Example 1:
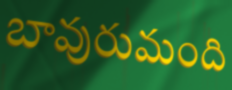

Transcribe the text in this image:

బావురుమంది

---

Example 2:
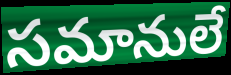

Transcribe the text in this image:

సమానులే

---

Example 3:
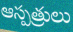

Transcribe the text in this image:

ఆస్పత్రులు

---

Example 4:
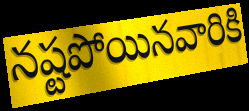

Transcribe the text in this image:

నష్టపోయినవారికి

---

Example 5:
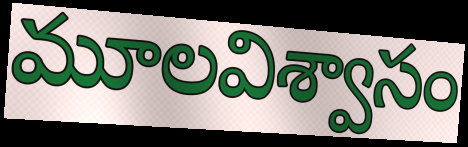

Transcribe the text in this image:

మూలవిశ్వాసం